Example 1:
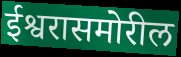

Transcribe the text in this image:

ईश्वरासमोरील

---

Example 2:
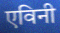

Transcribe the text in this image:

एविनी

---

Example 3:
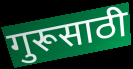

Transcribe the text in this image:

गुरूसाठी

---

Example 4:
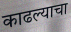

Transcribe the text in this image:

काढल्याचा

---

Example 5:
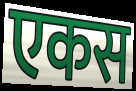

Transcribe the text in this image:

एकस